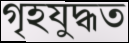
গৃহযুদ্ধত